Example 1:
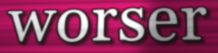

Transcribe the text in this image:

worser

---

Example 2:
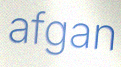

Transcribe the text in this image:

afgan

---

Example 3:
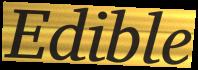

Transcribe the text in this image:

Edible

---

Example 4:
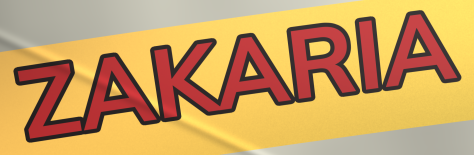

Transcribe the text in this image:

ZAKARIA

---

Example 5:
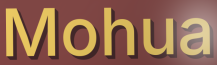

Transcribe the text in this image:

Mohua